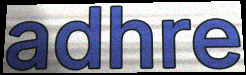
adhre